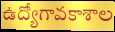
ఉద్యోగావకాశాల